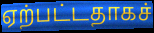
ஏற்பட்டதாகச்